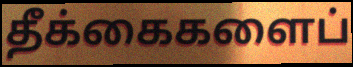
தீக்கைகளைப்